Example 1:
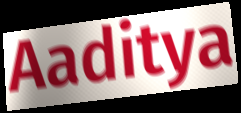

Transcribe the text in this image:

Aaditya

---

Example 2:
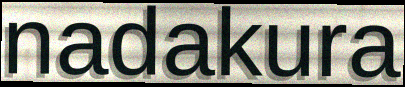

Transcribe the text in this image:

nadakura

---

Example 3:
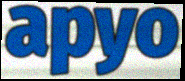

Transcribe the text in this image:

apyo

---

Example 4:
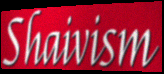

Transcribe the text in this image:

Shaivism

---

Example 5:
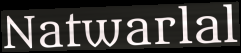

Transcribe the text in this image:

Natwarlal